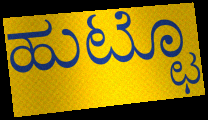
ಹುಟ್ಟೊ